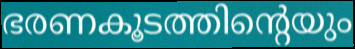
ഭരണകൂടത്തിന്റെയും